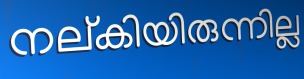
നല്കിയിരുന്നില്ല